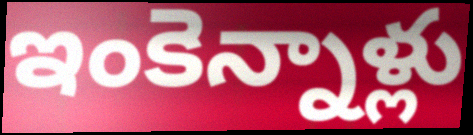
ఇంకెన్నాళ్లు